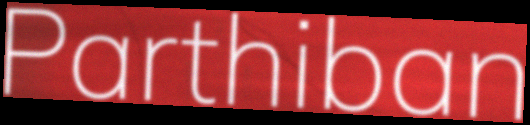
Parthiban